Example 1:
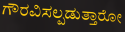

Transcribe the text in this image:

ಗೌರವಿಸಲ್ಪಡುತ್ತಾರೋ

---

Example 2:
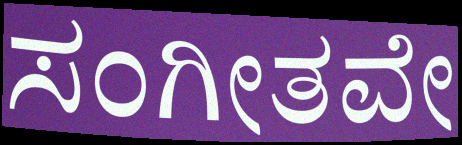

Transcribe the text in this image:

ಸಂಗೀತವೇ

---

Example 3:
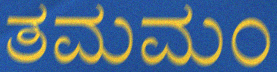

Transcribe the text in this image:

ತಮಮಂ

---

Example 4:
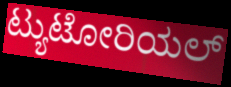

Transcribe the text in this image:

ಟ್ಯುಟೋರಿಯಲ್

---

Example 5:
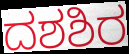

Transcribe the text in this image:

ದಶಶಿರ